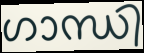
ഗാന്ധി